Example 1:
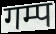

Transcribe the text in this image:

गम्प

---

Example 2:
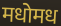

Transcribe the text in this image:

मधोमध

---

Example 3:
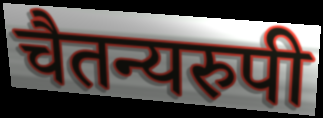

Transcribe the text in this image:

चैतन्यरुपी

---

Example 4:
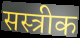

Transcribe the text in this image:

सस्त्रीक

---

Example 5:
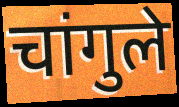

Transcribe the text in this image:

चांगुले